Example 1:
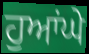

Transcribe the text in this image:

ਹੁਆਂਘੇ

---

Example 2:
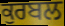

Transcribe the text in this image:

ਕੁਰਬਲ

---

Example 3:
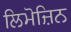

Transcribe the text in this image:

ਲਿਮੋਜ਼ਿਨ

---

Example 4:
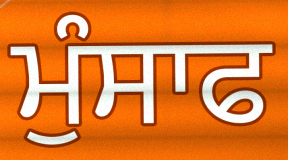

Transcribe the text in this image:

ਮੁੰਸਾਫ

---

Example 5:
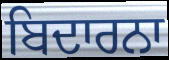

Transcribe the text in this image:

ਬਿਦਾਰਨਾ